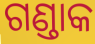
ଗଣ୍ଡାକ